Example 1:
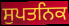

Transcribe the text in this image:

ਸੁਪਤਨਿਕ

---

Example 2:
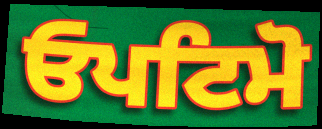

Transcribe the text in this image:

ਓਪਟਿਮੋ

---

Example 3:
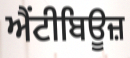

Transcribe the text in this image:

ਐਂਟੀਬਿਊਜ਼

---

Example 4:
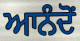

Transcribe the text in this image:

ਆਨੰਦੋਂ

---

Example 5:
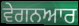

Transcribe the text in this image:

ਵੇਗਨਆਰ